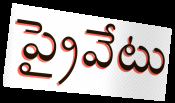
ప్రైవేటు